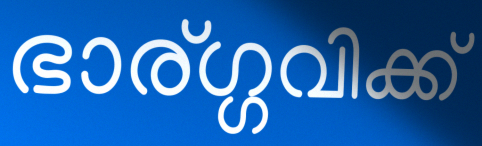
ഭാര്ഗ്ഗവിക്ക്